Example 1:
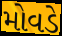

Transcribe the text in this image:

મોવડે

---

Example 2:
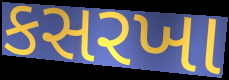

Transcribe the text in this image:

કસરખા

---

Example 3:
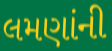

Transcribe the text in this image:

લમણાંની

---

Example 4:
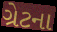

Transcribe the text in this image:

ગ્રેટના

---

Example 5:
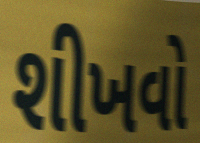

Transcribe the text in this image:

શીખવો